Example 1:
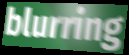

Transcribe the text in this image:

blurring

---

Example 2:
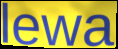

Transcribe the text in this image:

lewa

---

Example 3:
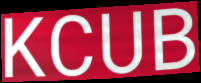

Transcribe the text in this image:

KCUB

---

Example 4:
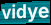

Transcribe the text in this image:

vidye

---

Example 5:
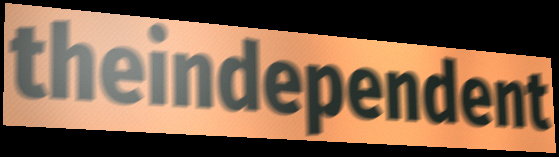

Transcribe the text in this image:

theindependent